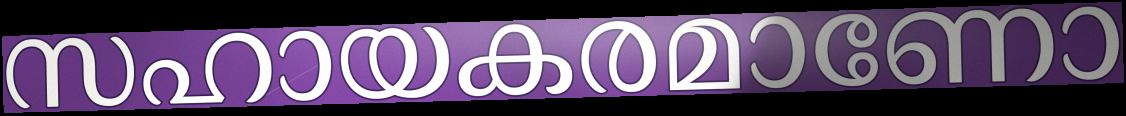
സഹായകരമാണോ